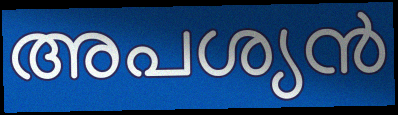
അപശ്യൻ